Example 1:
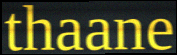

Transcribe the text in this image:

thaane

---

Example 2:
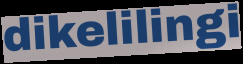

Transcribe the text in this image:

dikelilingi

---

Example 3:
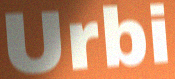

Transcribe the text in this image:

Urbi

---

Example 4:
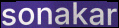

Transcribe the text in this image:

sonakar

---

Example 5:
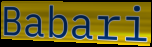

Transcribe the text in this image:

Babari